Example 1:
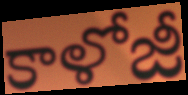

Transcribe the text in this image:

కాళోజీ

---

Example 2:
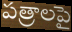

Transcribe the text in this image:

పత్రాలపై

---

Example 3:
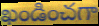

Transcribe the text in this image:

ఖండించగా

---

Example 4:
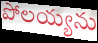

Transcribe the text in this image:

పోలయ్యను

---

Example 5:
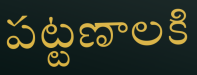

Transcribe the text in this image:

పట్టణాలకి